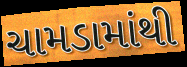
ચામડામાંથી